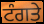
ਟੰਗਤੇ